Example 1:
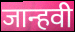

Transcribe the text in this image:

जान्‍हवी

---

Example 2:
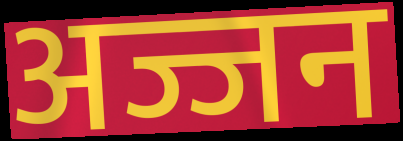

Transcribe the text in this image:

अज्जन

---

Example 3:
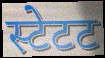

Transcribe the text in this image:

स्टेटट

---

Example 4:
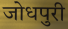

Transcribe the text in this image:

जोधपुरी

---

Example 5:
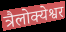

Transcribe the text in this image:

त्रैलोक्येश्वर